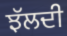
ਝੱਲਦੀ